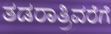
ತಡರಾತ್ರಿವರೆಗೆ